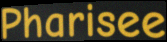
Pharisee